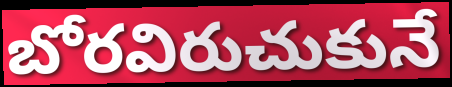
బోరవిరుచుకునే